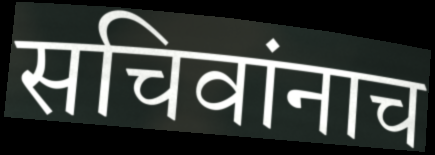
सचिवांनाच